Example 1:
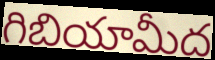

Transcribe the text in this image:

గిబియామీద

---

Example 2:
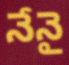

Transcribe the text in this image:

నేనై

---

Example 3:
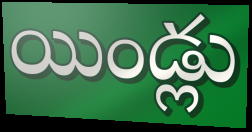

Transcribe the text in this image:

యిండ్లు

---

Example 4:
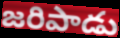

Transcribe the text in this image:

జరిపాడు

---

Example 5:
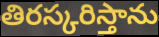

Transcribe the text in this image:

తిరస్కరిస్తాను